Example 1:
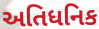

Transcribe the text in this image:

અતિધનિક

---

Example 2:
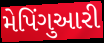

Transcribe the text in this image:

મેપિંગુઆરી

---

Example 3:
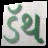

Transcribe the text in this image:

ડૅથ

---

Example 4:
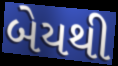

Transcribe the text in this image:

બેયથી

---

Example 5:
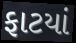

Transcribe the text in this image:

ફાટયાં